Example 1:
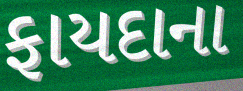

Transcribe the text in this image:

ફાયદાના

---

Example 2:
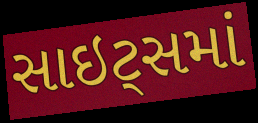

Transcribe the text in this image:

સાઇટ્સમાં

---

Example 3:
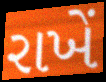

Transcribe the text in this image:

રાખેં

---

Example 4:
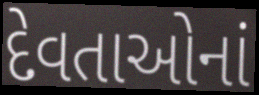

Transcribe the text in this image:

દેવતાઓનાં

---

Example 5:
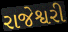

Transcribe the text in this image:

રાજેશ્વરી